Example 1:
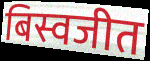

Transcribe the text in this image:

बिस्वजीत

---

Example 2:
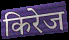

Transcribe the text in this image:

किरेज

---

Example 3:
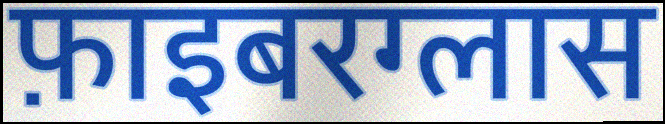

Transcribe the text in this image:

फ़ाइबरग्लास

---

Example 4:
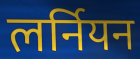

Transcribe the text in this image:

लर्नियन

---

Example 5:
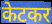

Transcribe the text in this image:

केटकर